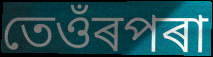
তেওঁৰপৰা